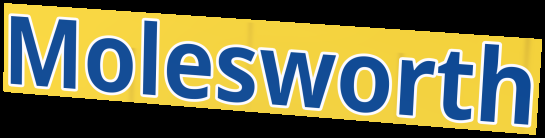
Molesworth